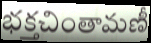
భక్తచింతామణీ